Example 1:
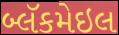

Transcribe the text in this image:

બ્લૅકમેઇલ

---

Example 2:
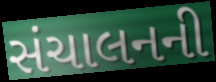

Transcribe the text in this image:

સંચાલનની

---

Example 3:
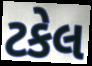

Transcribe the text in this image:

ટકેલ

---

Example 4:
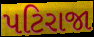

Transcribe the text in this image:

પટિરાજા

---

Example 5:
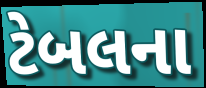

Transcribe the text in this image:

ટેબલના